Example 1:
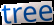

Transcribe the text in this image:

tree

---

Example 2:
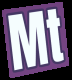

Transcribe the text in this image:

Mt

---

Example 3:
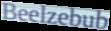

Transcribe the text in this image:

Beelzebub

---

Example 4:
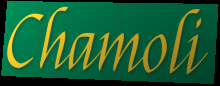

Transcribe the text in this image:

Chamoli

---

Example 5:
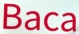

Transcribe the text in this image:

Baca